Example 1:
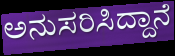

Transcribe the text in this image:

ಅನುಸರಿಸಿದ್ದಾನೆ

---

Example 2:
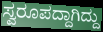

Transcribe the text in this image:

ಸ್ವರೂಪದ್ದಾಗಿದ್ದು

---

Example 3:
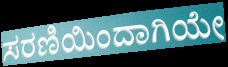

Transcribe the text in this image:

ಸರಣಿಯಿಂದಾಗಿಯೇ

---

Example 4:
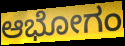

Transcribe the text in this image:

ಆಭೋಗಂ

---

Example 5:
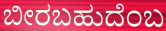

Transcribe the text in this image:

ಬೀರಬಹುದೆಂಬ